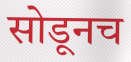
सोडूनच